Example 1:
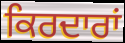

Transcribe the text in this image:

ਕਿਰਦਾਰਾਂ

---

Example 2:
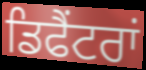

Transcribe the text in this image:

ਡਿਫੈਂਟਰਾਂ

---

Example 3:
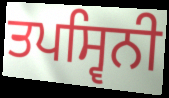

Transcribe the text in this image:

ਤਪਸ੍ਵਿਨੀ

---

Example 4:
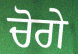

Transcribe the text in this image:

ਚੋਗੇ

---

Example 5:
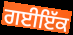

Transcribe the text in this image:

ਗਈਇੱਕ